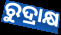
ରୁଦ୍ରାକ୍ଷ